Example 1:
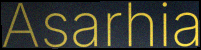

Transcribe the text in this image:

Asarhia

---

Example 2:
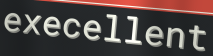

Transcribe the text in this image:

execellent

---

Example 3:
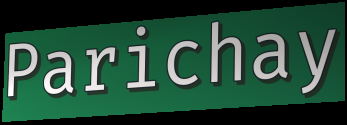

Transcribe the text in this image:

Parichay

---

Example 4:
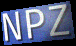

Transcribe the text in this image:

NPZ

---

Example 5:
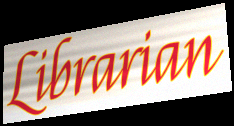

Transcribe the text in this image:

Librarian